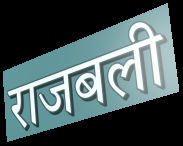
राजबली